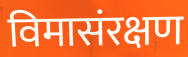
विमासंरक्षण